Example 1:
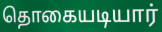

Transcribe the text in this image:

தொகையடியார்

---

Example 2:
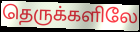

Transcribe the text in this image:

தெருக்களிலே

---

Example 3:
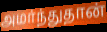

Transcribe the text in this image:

அமர்ந்துதான்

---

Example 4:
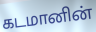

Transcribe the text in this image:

கடமானின்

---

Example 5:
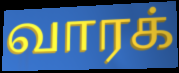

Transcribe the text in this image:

வாரக்